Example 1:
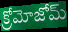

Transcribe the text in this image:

క్రోమోజోమ్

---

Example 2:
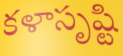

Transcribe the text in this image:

కళాసృష్టి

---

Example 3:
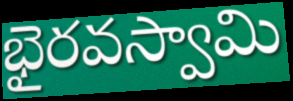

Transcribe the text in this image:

భైరవస్వామి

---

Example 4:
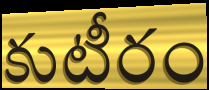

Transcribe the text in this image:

కుటీరం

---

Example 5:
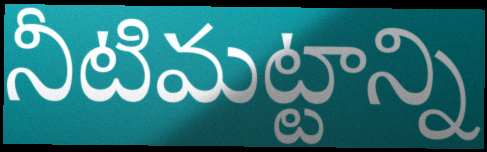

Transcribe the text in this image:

నీటిమట్టాన్ని